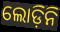
ଲୋଡ଼ିନି